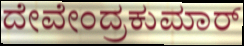
ದೇವೇಂದ್ರಕುಮಾರ್